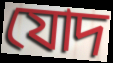
যোদ